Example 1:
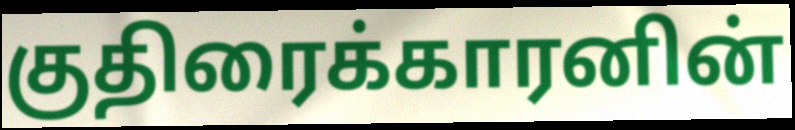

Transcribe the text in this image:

குதிரைக்காரனின்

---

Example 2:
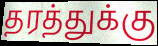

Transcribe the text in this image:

தரத்துக்கு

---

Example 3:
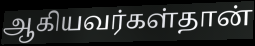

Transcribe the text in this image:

ஆகியவர்கள்தான்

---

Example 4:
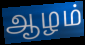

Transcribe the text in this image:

ஆழம்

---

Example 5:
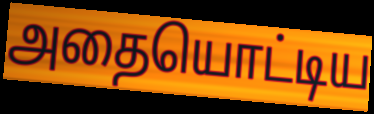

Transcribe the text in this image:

அதையொட்டிய